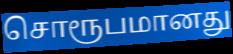
சொரூபமானது